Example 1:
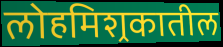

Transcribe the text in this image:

लोहमिश्रकातील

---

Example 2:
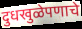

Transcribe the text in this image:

दुधखुळेपणाचे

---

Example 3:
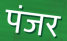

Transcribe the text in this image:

पंजर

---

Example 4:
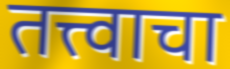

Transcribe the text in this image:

तत्त्वाचा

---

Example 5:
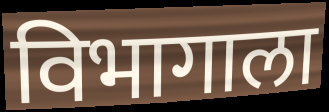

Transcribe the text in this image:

विभागाला